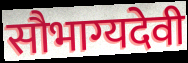
सौभाग्यदेवी